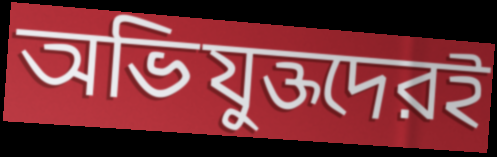
অভিযুক্তদেরই